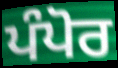
ਪੰਪੋਰ